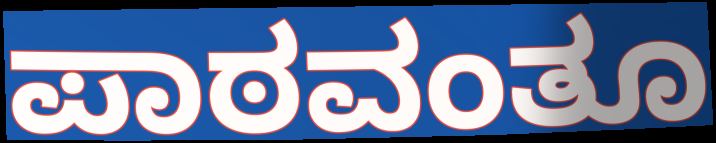
ಪಾಠವಂತೂ